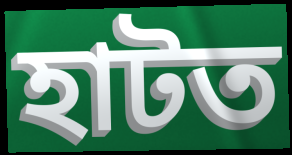
হাটত